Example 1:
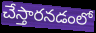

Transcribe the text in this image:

చేస్తారనడంలో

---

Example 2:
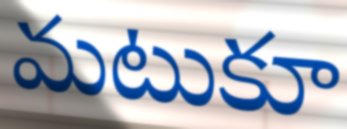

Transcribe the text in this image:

మటుకూ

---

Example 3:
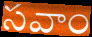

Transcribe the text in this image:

సవాం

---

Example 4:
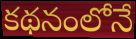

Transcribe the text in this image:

కథనంలోనే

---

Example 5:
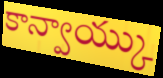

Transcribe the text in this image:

కాన్వాయ్కు